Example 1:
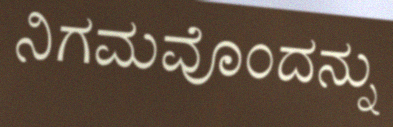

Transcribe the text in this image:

ನಿಗಮವೊಂದನ್ನು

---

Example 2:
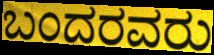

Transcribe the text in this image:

ಬಂದರವರು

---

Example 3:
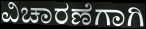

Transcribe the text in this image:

ವಿಚಾರಣೆಗಾಗಿ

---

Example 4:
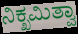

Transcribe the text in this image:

ನಿಕ್ಖಮಿತ್ವಾ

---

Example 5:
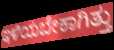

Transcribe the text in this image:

ಇಳಿಯಬೇಕಾಗಿತ್ತು